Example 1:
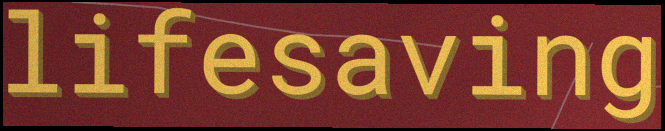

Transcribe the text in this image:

lifesaving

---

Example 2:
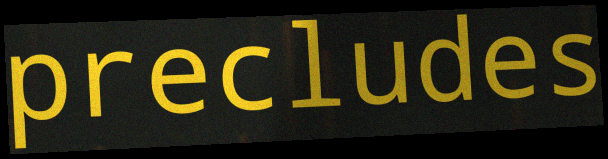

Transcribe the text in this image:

precludes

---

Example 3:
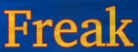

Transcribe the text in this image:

Freak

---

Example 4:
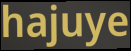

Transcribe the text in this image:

hajuye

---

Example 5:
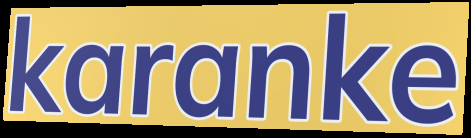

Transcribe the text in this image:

karanke